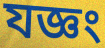
যজ্ঞং